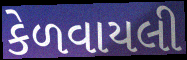
કેળવાયલી